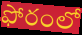
ఫోరంలో